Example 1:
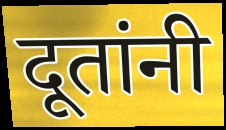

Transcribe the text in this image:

दूतांनी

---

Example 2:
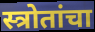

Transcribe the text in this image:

स्त्रोतांचा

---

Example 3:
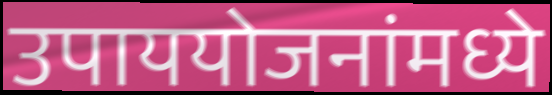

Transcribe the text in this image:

उपाययोजनांमध्ये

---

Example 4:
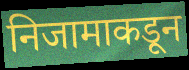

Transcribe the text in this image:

निजामाकडून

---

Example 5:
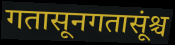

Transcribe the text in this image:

गतासूनगतासूंश्च